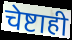
चेष्टाही